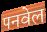
पनवेल